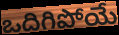
ఒదిగిపోయే